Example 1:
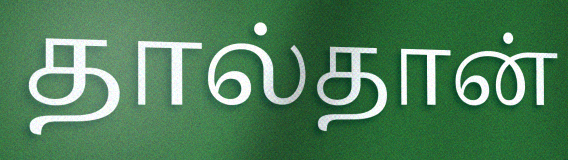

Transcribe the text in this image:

தால்தான்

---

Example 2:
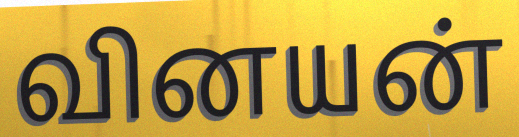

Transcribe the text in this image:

வினயன்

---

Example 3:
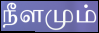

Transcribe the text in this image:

நீளமும்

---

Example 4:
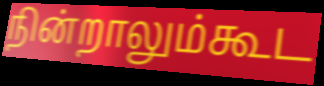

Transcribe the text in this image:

நின்றாலும்கூட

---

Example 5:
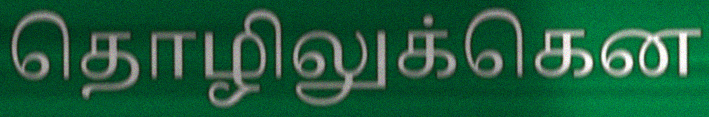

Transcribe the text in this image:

தொழிலுக்கென